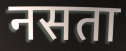
नसता